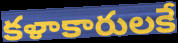
కళాకారులకే